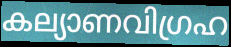
കല്യാണവിഗ്രഹ